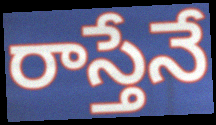
రాస్తేనే